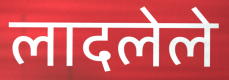
लादलेले